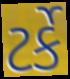
ટર્કે